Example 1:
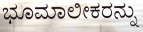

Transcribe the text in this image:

ಭೂಮಾಲೀಕರನ್ನು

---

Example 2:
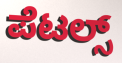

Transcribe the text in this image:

ಪೆಟಲ್ಸ್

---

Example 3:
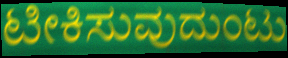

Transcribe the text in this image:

ಟೀಕಿಸುವುದುಂಟು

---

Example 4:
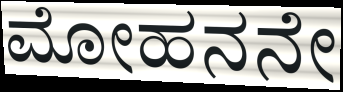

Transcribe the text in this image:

ಮೋಹನನೇ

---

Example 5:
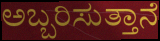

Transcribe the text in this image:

ಅಬ್ಬರಿಸುತ್ತಾನೆ